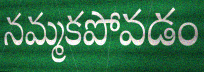
నమ్మకపోవడం